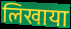
लिखाया